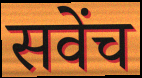
सवेंच